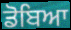
ਡੋਬਿਆ